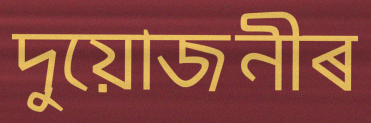
দুয়োজনীৰ